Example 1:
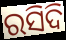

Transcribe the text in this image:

ରସିଦି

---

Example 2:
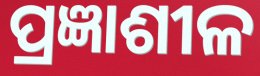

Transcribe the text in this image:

ପ୍ରଜ୍ଞାଶୀଳ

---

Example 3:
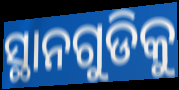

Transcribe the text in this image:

ସ୍ଥାନଗୁଡିକୁ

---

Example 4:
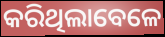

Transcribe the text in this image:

କରିଥିଲାବେଳେ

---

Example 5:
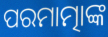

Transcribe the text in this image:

ପରମାତ୍ମାଙ୍କ